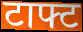
टाफ्ट